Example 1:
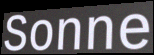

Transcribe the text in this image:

Sonne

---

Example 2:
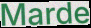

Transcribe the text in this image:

Marde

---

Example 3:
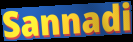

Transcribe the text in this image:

Sannadi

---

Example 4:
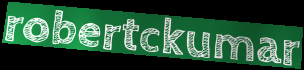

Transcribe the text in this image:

robertckumar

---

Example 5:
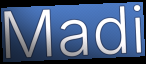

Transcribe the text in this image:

Madi